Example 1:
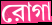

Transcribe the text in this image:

রোগা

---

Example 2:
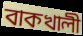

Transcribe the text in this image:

বাকখালী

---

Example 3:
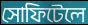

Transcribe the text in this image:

সোফিটেলে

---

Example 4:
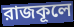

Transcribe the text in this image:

রাজকূলে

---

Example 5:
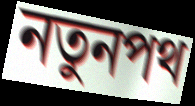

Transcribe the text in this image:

নতুনপথ